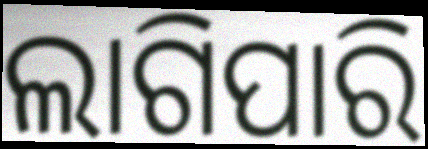
ଲାଗିପାରି